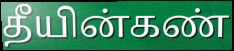
தீயின்கண்